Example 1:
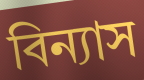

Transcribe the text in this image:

বিন্যাস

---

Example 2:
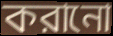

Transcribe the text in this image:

করানো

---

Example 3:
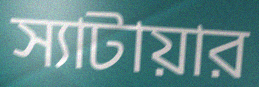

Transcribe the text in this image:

স্যাটায়ার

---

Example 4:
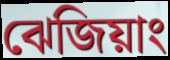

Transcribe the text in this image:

ঝেজিয়াং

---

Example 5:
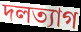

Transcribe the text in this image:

দলত্যাগ